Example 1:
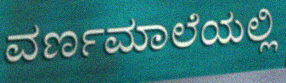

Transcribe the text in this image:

ವರ್ಣಮಾಲೆಯಲ್ಲಿ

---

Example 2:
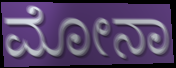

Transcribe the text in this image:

ಮೋನಾ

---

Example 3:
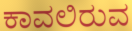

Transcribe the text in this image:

ಕಾವಲಿರುವ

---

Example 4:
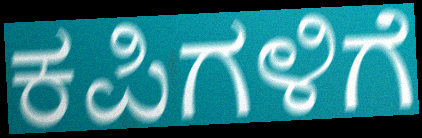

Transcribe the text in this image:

ಕಪಿಗಳಿಗೆ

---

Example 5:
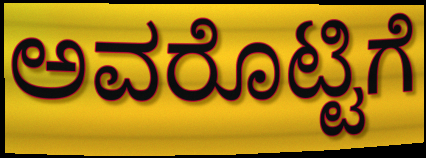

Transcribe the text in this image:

ಅವರೊಟ್ಟಿಗೆ